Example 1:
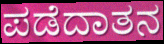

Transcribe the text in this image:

ಪಡೆದಾತನ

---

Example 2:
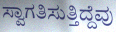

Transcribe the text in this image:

ಸ್ವಾಗತಿಸುತ್ತಿದ್ದೆವು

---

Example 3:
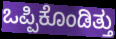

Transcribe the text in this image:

ಒಪ್ಪಿಕೊಂಡಿತ್ತು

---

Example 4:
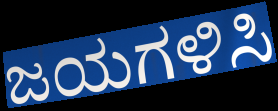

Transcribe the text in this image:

ಜಯಗಳಿಸಿ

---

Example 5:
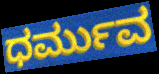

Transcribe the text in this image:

ಧರ್ಮುವ